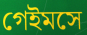
গেইমসে